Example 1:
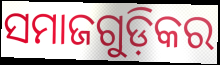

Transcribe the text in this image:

ସମାଜଗୁଡ଼ିକର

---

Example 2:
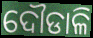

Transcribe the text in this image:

ଦୌଡାଳି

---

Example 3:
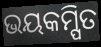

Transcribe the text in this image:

ଭୟକମ୍ପିତ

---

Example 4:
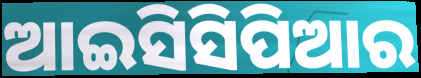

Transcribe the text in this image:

ଆଇସିସିପିଆର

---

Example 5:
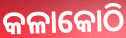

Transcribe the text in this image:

କଳାକୋଠି